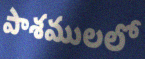
పాశములలో